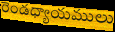
రెండధ్యాయములు